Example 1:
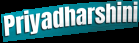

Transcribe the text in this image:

Priyadharshini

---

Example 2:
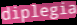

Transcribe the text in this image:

diplegia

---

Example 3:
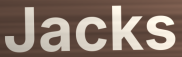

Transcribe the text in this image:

Jacks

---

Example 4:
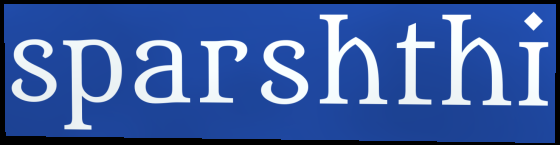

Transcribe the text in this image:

sparshthi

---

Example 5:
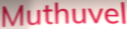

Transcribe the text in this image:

Muthuvel